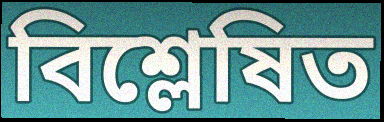
বিশ্লেষিত